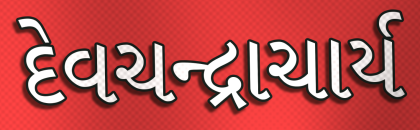
દેવચન્દ્રાચાર્ય